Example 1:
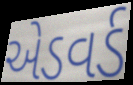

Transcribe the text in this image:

એડવર્ડ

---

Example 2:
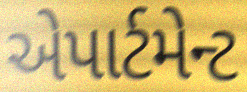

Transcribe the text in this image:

એપાર્ટમેન્ટ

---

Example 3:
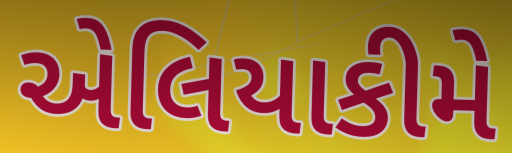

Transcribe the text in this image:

એલિયાકીમે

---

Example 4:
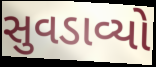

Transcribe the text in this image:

સુવડાવ્યો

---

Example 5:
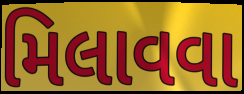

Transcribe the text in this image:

મિલાવવા